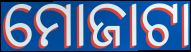
ମୋଜାଟା